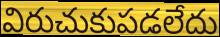
విరుచుకుపడలేదు